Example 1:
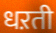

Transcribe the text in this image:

धऱती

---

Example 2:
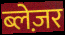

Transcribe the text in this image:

ब्लेज़र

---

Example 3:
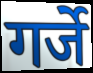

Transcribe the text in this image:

गर्जे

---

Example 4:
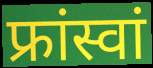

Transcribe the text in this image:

फ्रांस्वां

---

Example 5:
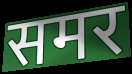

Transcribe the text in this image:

समर